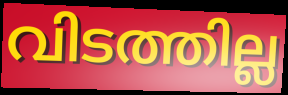
വിടത്തില്ല